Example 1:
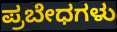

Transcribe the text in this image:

ಪ್ರಬೇಧಗಳು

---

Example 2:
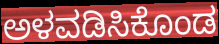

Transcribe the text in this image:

ಅಳವಡಿಸಿಕೊಂಡ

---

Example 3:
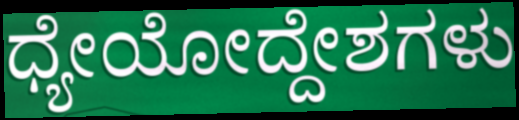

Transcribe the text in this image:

ಧ್ಯೇಯೋದ್ದೇಶಗಳು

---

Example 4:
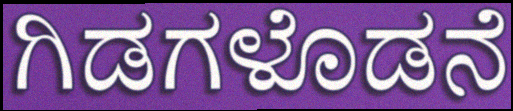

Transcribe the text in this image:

ಗಿಡಗಳೊಡನೆ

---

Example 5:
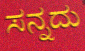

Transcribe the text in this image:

ಸನ್ನದು